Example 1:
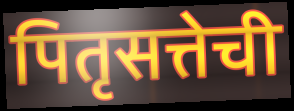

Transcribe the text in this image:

पितृसत्तेची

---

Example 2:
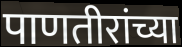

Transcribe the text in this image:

पाणतीरांच्या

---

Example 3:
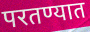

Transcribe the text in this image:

परतण्यात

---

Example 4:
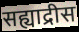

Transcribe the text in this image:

सह्याद्रीस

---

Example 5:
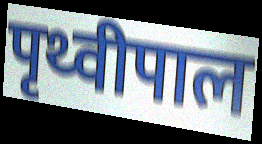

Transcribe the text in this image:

पृथ्वीपाल